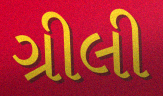
ગ્રીલી